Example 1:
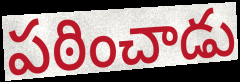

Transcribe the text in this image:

పఠించాడు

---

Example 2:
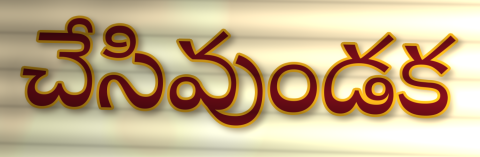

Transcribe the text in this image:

చేసివుండక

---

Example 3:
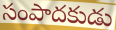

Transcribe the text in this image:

సంపాదకుడు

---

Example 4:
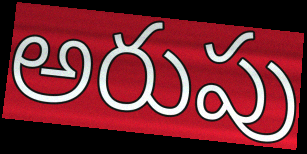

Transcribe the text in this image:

అరుపు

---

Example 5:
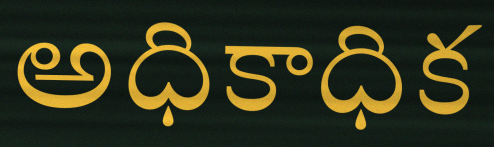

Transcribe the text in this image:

అధికాధిక